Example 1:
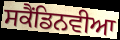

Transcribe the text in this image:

ਸਕੈਂਡਿਨਵੀਆ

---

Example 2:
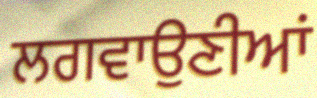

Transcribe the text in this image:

ਲਗਵਾਉਣੀਆਂ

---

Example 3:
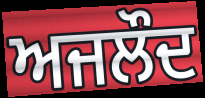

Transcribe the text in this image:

ਅਜਲੌਦ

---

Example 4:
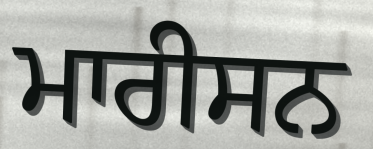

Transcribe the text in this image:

ਮਾਰੀਸਨ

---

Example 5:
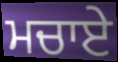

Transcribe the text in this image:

ਮਚਾਏ